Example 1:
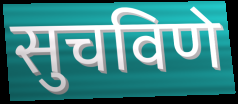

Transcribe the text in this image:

सुचविणे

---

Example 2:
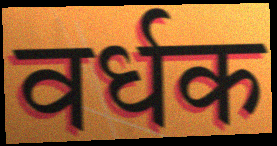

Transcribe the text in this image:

वर्धक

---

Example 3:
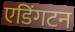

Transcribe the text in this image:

एडिंगटन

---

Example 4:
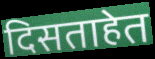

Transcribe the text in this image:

दिसताहेत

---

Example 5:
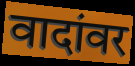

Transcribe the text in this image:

वादांवर